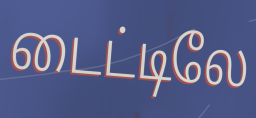
டைட்டிலே